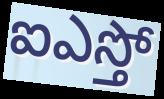
ఐఎస్తో